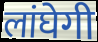
लांघेगी